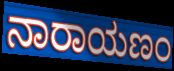
ನಾರಾಯಣಂ